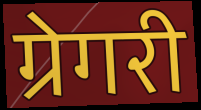
ग्रेगरी